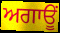
ਅਗਾਊਂ